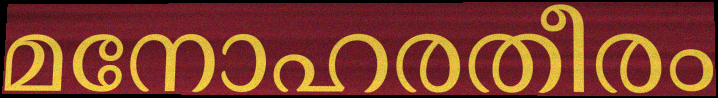
മനോഹരതീരം